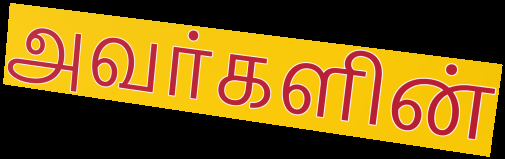
அவர்களின்